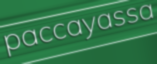
paccayassa